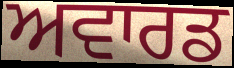
ਅਵਾਰਡ